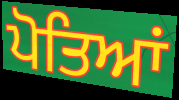
ਪੋਤਿਆਂ